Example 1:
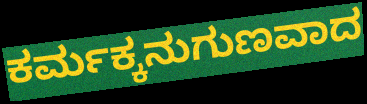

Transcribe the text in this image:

ಕರ್ಮಕ್ಕನುಗುಣವಾದ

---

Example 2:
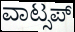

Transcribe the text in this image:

ವಾಟ್ಸಪ್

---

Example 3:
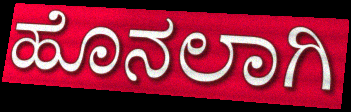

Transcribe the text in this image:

ಹೊನಲಾಗಿ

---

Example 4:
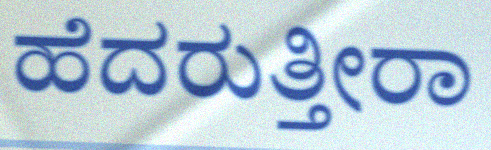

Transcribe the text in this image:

ಹೆದರುತ್ತೀರಾ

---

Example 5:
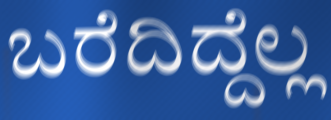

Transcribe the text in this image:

ಬರೆದಿದ್ದೆಲ್ಲ